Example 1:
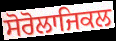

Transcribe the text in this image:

ਸੋਰੋਲਾਜਿਕਲ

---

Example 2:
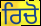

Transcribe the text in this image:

ਰਿਚੋ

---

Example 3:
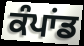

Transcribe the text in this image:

ਕੰਪਾਂਡ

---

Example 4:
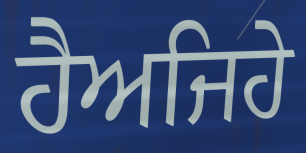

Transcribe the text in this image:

ਹੈਅਜਿਹੇ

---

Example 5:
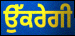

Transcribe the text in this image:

ਉੱਕਰੇਗੀ